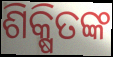
ଶିକ୍ଷିତଙ୍କ